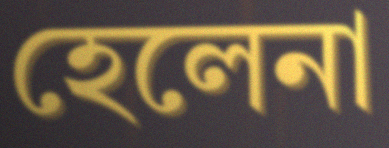
হেলেনা